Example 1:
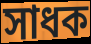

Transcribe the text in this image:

সাধক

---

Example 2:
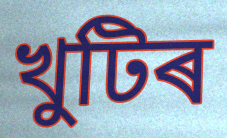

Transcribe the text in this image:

খুটিৰ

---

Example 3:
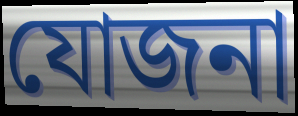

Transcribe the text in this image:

যোজনা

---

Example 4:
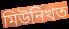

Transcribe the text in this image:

মিউনিখত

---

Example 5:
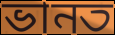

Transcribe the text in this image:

ভানত